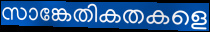
സാങ്കേതികതകളെ